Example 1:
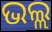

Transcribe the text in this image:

ଭଲ୍ଲ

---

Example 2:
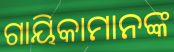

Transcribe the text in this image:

ଗାୟିକାମାନଙ୍କ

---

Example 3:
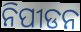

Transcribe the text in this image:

ନିପୀଡନ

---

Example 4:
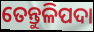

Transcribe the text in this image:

ତେନ୍ତୁଳିପଦା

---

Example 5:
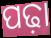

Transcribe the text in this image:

ପଢ଼ା